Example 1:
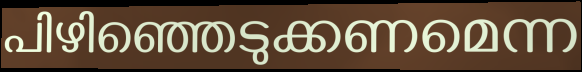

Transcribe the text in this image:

പിഴിഞ്ഞെടുക്കണമെന്ന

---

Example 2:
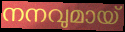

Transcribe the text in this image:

നനവുമായ്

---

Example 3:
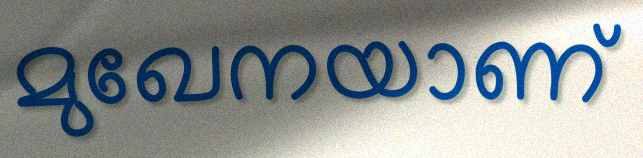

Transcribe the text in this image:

മുഖേനയാണ്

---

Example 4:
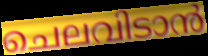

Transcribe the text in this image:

ചെലവിടാൻ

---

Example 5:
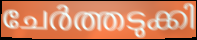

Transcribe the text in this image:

ചേർത്തടുക്കി